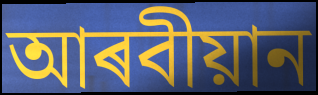
আৰবীয়ান